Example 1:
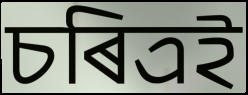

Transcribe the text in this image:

চৰিত্ৰই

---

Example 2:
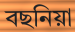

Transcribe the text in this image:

বছনিয়া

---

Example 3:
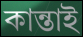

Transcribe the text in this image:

কান্তাই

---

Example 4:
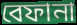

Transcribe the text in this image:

বেফানা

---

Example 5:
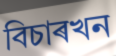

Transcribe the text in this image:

বিচাৰখন